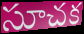
సూచక